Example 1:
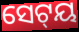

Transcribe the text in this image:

ସେଟ୍‌ୟ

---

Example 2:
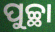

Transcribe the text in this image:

ପୁଚ୍ଛା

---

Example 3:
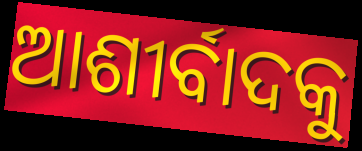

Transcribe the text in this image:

ଆଶୀର୍ବାଦକୁ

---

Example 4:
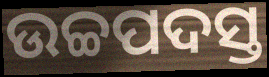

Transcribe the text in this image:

ଉଚ୍ଚପଦସ୍ତ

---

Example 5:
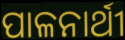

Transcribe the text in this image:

ପାଳନାର୍ଥୀ